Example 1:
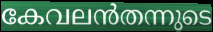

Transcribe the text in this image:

കേവലൻതന്നുടെ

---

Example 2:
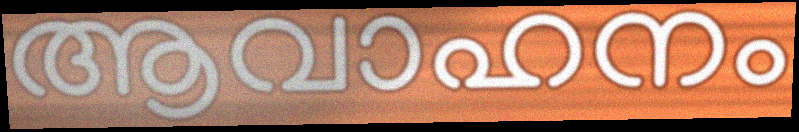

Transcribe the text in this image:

ആവാഹനം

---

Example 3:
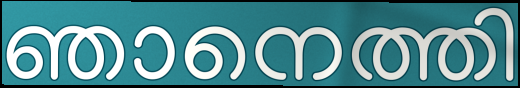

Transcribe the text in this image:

ഞാനെത്തി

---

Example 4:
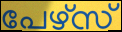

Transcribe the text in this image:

പേഴ്സ്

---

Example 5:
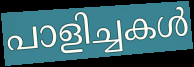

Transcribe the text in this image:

പാളിച്ചകൾ